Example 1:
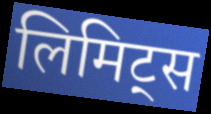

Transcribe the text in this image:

लिमिट्स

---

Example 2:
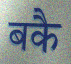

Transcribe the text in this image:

बकै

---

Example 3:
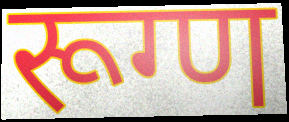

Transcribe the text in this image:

रूग्ण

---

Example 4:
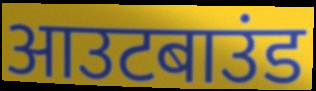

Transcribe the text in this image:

आउटबाउंड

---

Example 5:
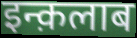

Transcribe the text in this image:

इन्क़लाब